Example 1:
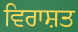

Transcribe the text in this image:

ਵਿਰਾਸ਼ਤ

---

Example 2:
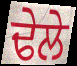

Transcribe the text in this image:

ਢੇਲੇ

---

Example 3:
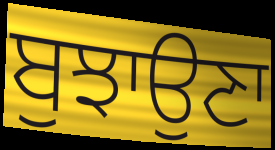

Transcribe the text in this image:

ਬੁਝਾਉਣਾ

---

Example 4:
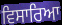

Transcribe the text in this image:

ਵਿਸਾਰਿਆ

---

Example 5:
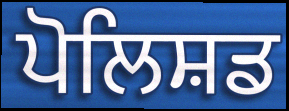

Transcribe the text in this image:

ਪੋਲਿਸ਼ਡ